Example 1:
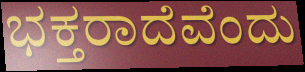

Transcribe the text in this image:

ಭಕ್ತರಾದೆವೆಂದು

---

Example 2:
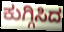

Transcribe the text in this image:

ಕುಗ್ಗಿಸಿದ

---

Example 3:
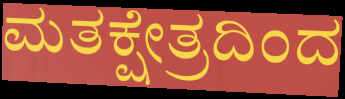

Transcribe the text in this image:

ಮತಕ್ಷೇತ್ರದಿಂದ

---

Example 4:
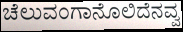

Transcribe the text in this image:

ಚೆಲುವಂಗಾನೊಲಿದೆನವ್ವ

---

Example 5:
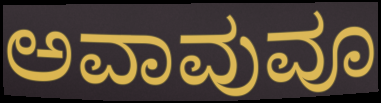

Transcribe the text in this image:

ಅವಾವುವೂ